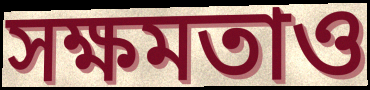
সক্ষমতাও